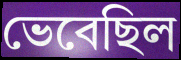
ভেবেছিল